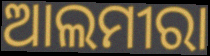
ଆଲମୀରା